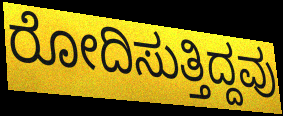
ರೋದಿಸುತ್ತಿದ್ದವು